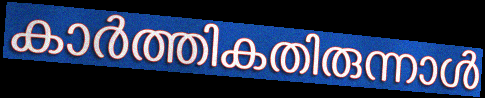
കാർത്തികതിരുന്നാൾ